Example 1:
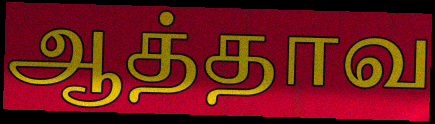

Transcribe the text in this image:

ஆத்தாவ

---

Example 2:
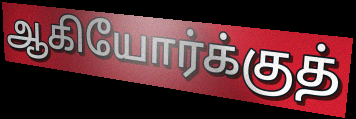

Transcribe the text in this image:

ஆகியோர்க்குத்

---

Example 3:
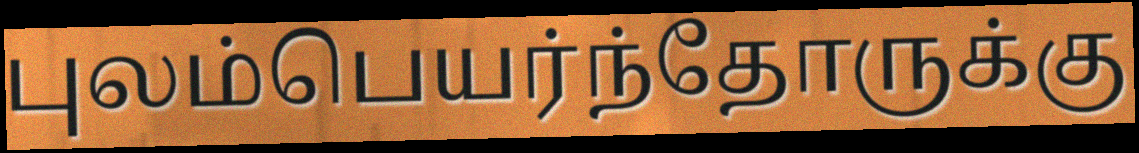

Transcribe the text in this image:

புலம்பெயர்ந்தோருக்கு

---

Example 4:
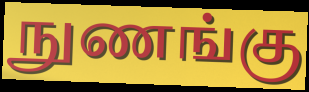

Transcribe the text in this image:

நுணங்கு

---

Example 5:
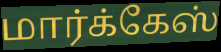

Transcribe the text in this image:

மார்க்கேஸ்